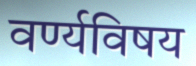
वर्ण्यविषय